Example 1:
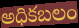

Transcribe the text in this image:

అధికబలం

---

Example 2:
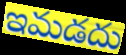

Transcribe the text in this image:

ఇమడదు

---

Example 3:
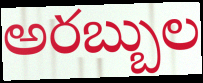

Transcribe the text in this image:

అరబ్బుల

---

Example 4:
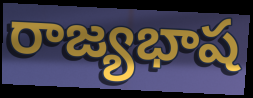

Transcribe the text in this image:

రాజ్యభాష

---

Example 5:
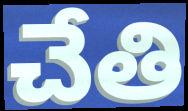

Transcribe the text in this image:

చేతి